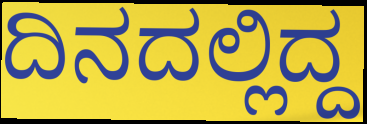
ದಿನದಲ್ಲಿದ್ದ